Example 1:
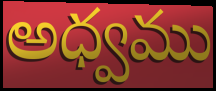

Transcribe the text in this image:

అధ్వము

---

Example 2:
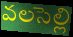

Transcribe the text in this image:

వలసెల్లి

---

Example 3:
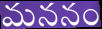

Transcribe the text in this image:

మననం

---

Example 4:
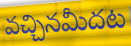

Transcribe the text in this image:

వచ్చినమీదట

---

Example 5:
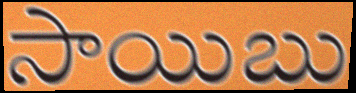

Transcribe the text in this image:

సాయిబు